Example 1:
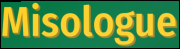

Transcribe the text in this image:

Misologue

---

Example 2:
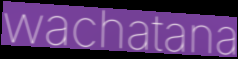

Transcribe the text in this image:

wachatana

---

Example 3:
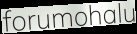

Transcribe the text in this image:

forumohalu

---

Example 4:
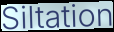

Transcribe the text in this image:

Siltation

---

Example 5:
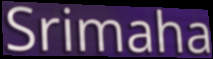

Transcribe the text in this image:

Srimaha